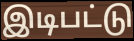
இடிபட்டு